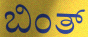
ಬಿಂತ್